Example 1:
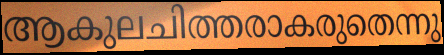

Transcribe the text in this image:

ആകുലചിത്തരാകരുതെന്നു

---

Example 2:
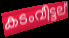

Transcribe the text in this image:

കടംവീട്ടല്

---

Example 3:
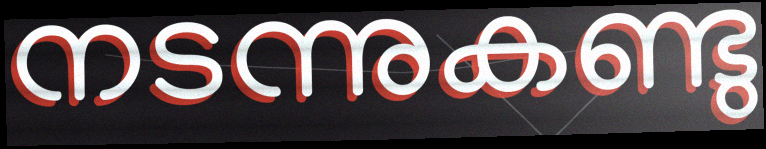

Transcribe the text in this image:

നടന്നുകണ്ടു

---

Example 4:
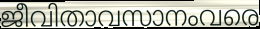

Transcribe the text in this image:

ജീവിതാവസാനംവരെ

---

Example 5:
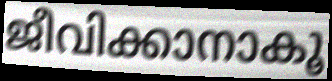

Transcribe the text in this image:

ജീവിക്കാനാകൂ